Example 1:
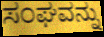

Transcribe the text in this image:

ಸಂಘವನ್ನು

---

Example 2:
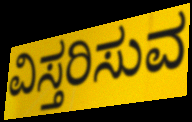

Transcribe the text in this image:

ವಿಸ್ತರಿಸುವ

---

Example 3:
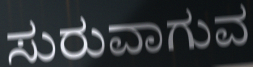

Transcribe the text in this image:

ಸುರುವಾಗುವ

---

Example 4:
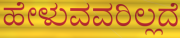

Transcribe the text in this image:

ಹೇಳುವವರಿಲ್ಲದೆ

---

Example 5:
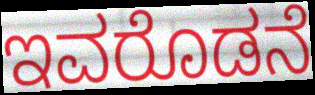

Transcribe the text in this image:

ಇವರೊಡನೆ